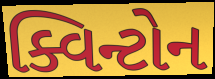
ક્વિન્ટોન